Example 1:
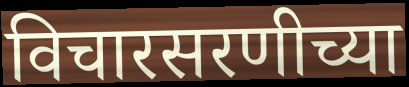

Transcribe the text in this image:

विचारसरणीच्या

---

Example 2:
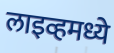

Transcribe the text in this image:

लाइव्हमध्ये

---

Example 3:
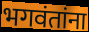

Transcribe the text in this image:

भगवंतांना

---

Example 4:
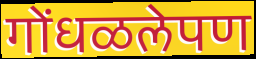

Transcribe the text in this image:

गोंधळलेपण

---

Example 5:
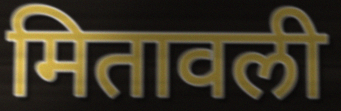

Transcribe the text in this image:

मितावली